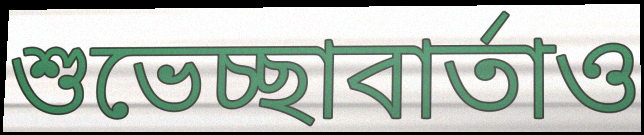
শুভেচ্ছাবার্তাও